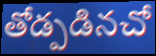
తోడ్పడినచో